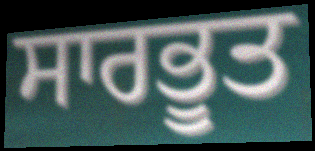
ਸਾਰਭੂਤ